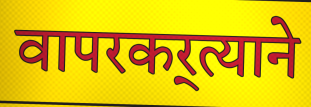
वापरकर्त्याने